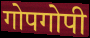
गोपगोपी